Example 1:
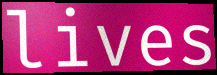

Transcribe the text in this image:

lives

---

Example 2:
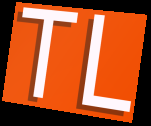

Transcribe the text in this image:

TL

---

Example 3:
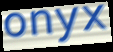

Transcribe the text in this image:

onyx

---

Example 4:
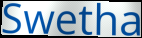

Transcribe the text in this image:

Swetha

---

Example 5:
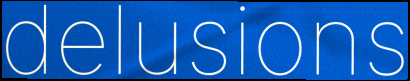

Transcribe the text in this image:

delusions